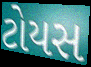
ટોયસ